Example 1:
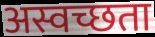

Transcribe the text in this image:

अस्वच्छता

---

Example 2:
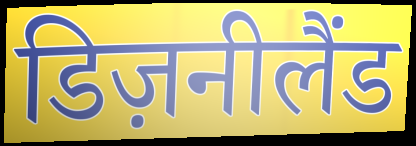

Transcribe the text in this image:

डिज़नीलैंड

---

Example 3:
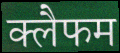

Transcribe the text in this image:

क्लैफम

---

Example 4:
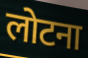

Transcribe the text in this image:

लोटना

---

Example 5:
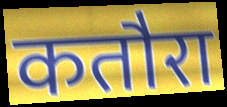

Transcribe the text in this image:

कतौरा